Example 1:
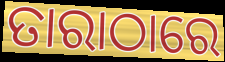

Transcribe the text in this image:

ତାରାଠାରେ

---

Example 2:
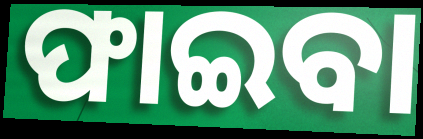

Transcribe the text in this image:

ଫାଇବା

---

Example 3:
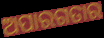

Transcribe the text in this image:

ଅପାରଗତାର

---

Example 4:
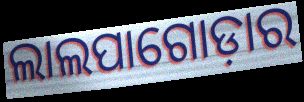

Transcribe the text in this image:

ଲାଲପାଗୋଡ଼ାର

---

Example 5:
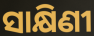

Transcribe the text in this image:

ସାକ୍ଷିଣୀ